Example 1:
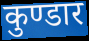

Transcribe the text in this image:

कुण्डार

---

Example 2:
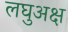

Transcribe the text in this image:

लघुअक्ष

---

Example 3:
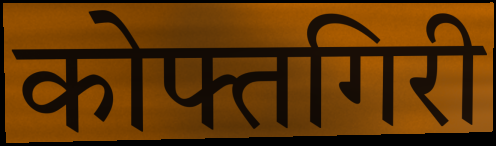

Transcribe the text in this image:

कोफ्तगिरी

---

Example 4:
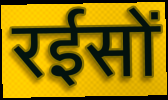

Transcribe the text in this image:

रईसों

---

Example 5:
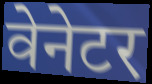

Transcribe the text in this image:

वेनेटर